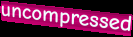
uncompressed